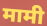
मामी